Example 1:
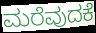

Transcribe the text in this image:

ಮರೆವುದಕೆ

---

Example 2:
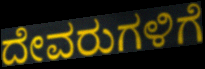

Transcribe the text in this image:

ದೇವರುಗಳಿಗೆ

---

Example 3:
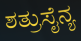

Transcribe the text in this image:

ಶತ್ರುಸೈನ್ಯ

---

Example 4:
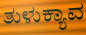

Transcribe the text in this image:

ತುಳುಕ್ಯಾವ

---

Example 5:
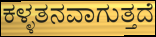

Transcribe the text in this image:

ಕಳ್ಳತನವಾಗುತ್ತದೆ